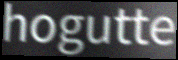
hogutte